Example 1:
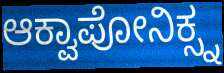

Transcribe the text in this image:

ಆಕ್ವಾಪೋನಿಕ್ಸ್ನ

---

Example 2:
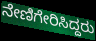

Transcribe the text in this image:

ನೇಣಿಗೇರಿಸಿದ್ದರು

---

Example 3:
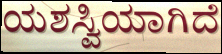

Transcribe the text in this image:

ಯಶಸ್ವಿಯಾಗಿದೆ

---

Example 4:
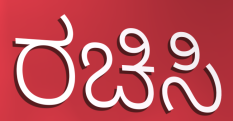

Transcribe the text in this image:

ರಚಿಸಿ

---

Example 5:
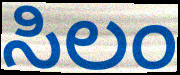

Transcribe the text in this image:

ಸಿಲಂ